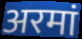
अरमां